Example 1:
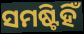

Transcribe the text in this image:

ସମଷ୍ଟିହିଁ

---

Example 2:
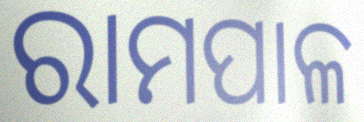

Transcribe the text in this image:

ରାମପାଳ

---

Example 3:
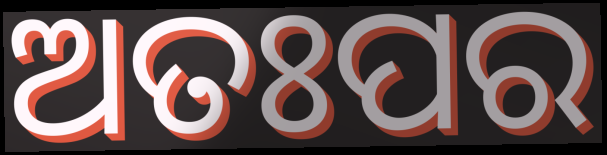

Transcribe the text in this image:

ଅତଃପର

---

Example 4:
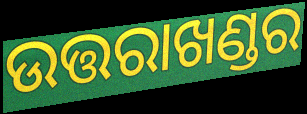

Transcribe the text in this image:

ଉତ୍ତରାଖଣ୍ଡର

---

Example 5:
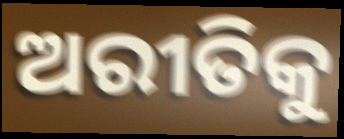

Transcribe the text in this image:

ଅରୀତିକୁ